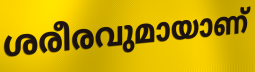
ശരീരവുമായാണ്